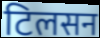
टिलसन